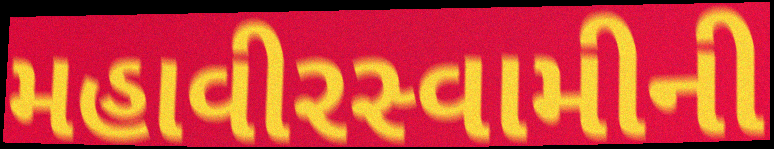
મહાવીરસ્વામીની